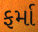
ફર્મા